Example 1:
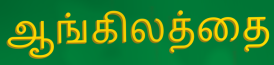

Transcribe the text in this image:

ஆங்கிலத்தை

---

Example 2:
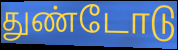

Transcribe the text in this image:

துண்டோடு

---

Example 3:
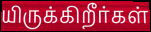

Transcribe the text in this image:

யிருக்கிறீர்கள்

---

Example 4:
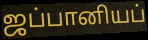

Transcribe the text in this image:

ஜப்பானியப்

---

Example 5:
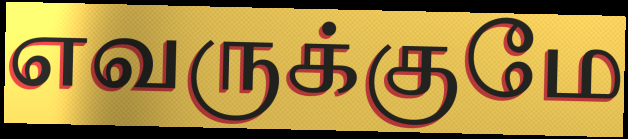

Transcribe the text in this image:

எவருக்குமே